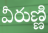
వీరుణ్ణి